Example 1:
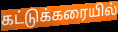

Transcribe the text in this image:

கட்டுக்கரையில்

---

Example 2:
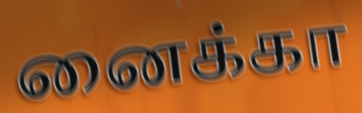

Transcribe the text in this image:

னைக்கா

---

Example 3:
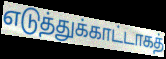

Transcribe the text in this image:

எடுத்துக்காட்டாகத்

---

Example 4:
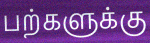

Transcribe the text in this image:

பற்களுக்கு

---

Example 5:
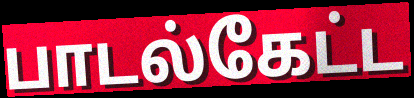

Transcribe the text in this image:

பாடல்கேட்ட